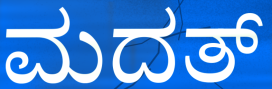
ಮದತ್